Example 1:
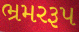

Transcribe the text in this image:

ભ્રમરરૂપ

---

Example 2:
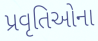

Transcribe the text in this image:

પ્રવૃતિઓના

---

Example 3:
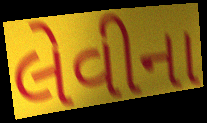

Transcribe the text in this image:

લેવીના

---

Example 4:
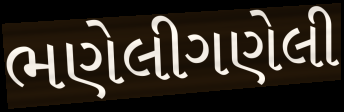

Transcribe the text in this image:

ભણેલીગણેલી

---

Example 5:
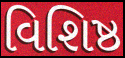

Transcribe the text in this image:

વિશિષ્ઠ